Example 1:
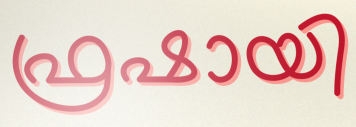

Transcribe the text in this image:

ഫ്രഷായി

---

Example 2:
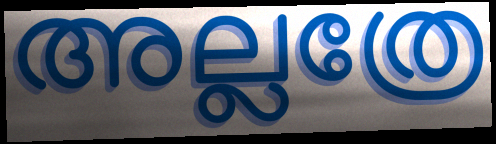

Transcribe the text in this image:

അല്ലത്രേ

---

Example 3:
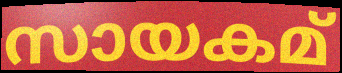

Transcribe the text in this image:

സായകമ്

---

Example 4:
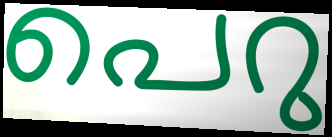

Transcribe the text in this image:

പെറു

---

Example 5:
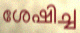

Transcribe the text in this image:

ശേഷിച്ച